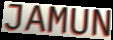
JAMUN